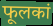
फूलकां